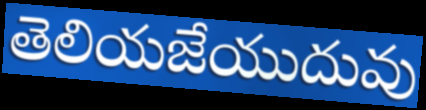
తెలియజేయుదువు